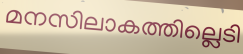
മനസിലാകത്തില്ലെടി